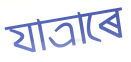
যাত্ৰাৰে